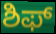
ಶಿಫ್